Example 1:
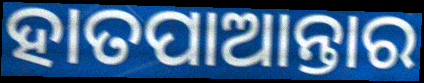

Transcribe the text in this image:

ହାତପାଆନ୍ତାର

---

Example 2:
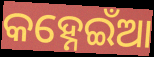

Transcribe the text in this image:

କହ୍ନେଇଁଆ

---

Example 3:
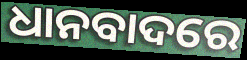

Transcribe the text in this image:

ଧାନବାଦରେ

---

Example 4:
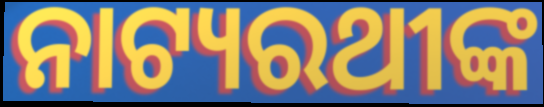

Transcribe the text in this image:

ନାଟ୍ୟରଥୀଙ୍କ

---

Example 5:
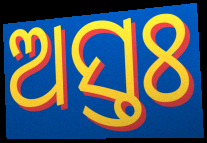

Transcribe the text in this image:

ଅସ୍ତଃ